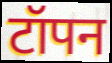
टॉपन